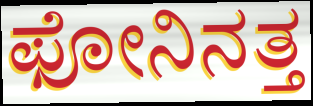
ಫೋನಿನತ್ತ